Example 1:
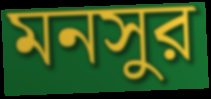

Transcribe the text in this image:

মনসুর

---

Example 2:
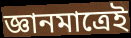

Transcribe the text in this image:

জ্ঞানমাত্রেই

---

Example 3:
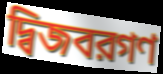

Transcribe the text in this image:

দ্বিজবরগণ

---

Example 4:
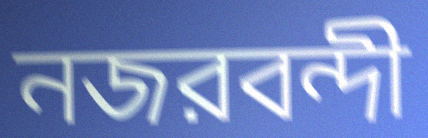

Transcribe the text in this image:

নজরবন্দী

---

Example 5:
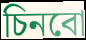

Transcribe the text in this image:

চিনবো